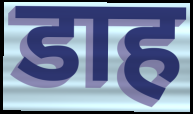
डाह